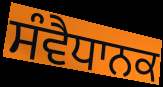
ਸੰਵੈਧਾਨਕ